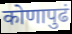
कोणापुढं